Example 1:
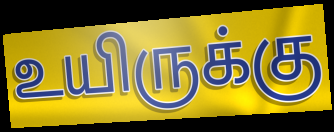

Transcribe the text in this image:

உயிருக்கு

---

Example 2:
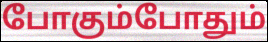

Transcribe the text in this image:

போகும்போதும்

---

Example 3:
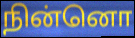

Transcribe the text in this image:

நின்னொ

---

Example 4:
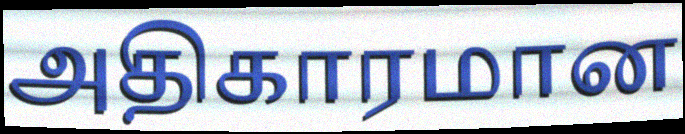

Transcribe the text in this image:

அதிகாரமான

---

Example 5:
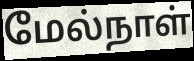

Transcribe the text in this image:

மேல்நாள்